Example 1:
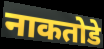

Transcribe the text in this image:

नाकतोडे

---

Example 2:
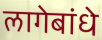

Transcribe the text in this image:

लागेबांधे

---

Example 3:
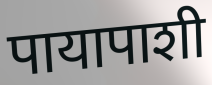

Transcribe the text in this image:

पायापाशी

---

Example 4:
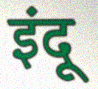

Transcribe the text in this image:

इंदू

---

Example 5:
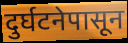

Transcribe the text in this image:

दुर्घटनेपासून